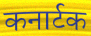
कनार्टक